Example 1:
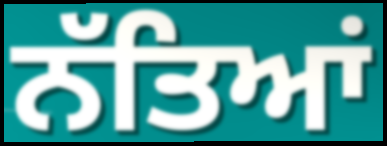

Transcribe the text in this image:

ਨੱਤਿਆਂ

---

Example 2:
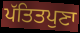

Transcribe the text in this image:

ਪੱਤਿਤਪੁਣਾ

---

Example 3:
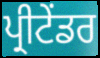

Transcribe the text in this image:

ਪ੍ਰੀਟੇਂਡਰ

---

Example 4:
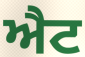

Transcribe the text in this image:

ਐਟ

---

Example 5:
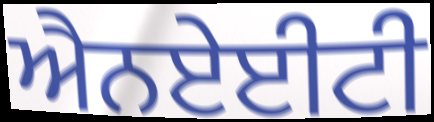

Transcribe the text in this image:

ਐਨਏਈਟੀ